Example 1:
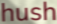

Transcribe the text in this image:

hush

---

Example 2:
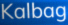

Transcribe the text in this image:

Kalbag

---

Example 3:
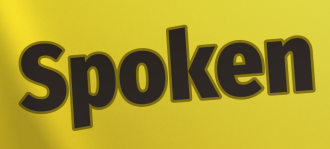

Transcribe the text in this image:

Spoken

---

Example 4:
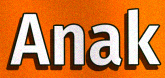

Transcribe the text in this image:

Anak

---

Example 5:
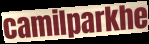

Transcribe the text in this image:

camilparkhe